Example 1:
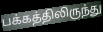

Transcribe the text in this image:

பக்கத்திலிருந்து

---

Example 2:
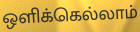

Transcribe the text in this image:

ஒளிக்கெல்லாம்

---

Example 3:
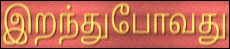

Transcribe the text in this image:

இறந்துபோவது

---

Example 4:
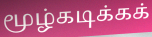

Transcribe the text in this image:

மூழ்கடிக்கக்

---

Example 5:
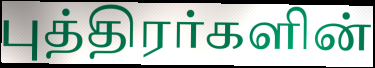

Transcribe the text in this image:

புத்திரர்களின்